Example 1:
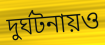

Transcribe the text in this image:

দুর্ঘটনায়ও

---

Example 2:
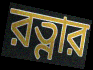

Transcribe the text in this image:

রত্নার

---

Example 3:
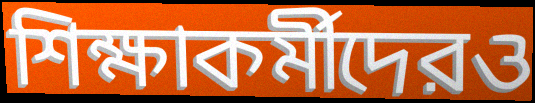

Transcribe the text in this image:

শিক্ষাকর্মীদেরও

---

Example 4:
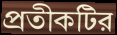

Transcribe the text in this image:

প্রতীকটির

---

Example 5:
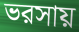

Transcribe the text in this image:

ভরসায়